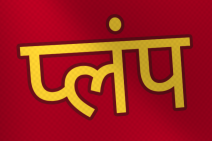
प्लंप